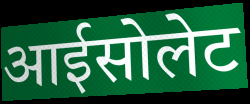
आईसोलेट